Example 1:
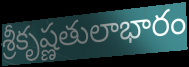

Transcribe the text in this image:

శ్రీకృష్ణతులాభారం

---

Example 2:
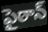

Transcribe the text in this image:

పైఠాన్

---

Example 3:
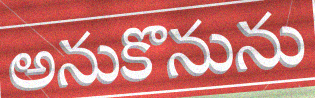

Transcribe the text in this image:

అనుకొనును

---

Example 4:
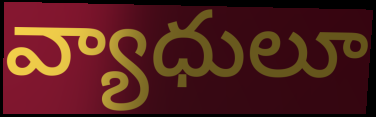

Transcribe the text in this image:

వ్యాధులూ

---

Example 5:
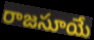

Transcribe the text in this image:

రాజసూయే